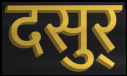
दसुर्